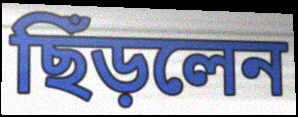
ছিঁড়লেন